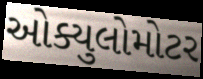
ઓક્યુલોમોટર